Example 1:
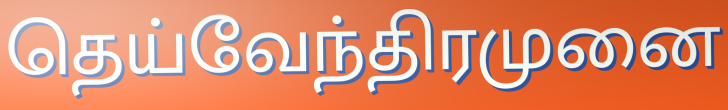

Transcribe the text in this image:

தெய்வேந்திரமுனை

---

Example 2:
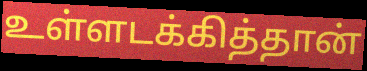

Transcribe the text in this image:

உள்ளடக்கித்தான்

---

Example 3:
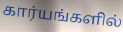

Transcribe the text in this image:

கார்யங்களில்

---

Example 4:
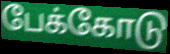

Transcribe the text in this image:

பேக்கோடு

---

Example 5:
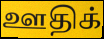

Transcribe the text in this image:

ஊதிக்